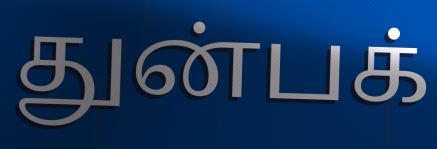
துன்பக்